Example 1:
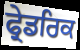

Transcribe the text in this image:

ਫ੍ਰੇਡਰਿਕ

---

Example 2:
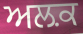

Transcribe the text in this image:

ਅਲ਼ਕ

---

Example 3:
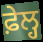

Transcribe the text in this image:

ਫ਼ੇਲ੍ਹ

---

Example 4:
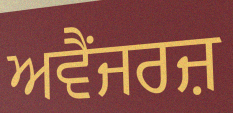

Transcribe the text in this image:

ਅਵੈਂਜਰਜ਼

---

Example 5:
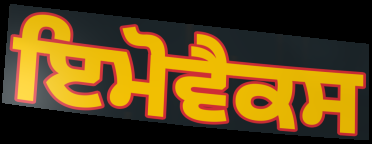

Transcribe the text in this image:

ਇਮੋਵੈਕਸ